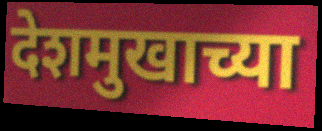
देशमुखाच्या